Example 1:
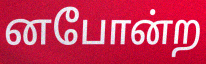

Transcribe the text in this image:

னபோன்ற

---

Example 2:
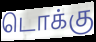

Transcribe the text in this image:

டொக்கு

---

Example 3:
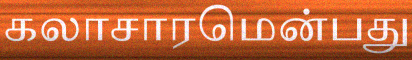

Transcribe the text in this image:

கலாசாரமென்பது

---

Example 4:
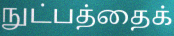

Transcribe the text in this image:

நுட்பத்தைக்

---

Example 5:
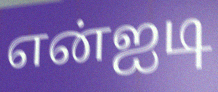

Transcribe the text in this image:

என்ஐடி